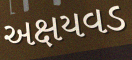
અક્ષયવડ